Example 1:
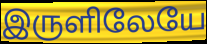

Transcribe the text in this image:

இருளிலேயே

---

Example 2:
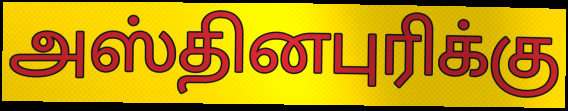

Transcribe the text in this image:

அஸ்தினபுரிக்கு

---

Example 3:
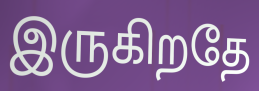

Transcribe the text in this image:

இருகிறதே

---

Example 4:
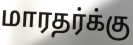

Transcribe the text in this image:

மாரதர்க்கு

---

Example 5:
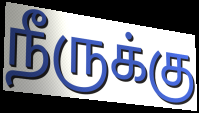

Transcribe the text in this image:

நீருக்கு